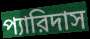
প্যারিদাস